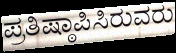
ಪ್ರತಿಷ್ಠಾಪಿಸಿರುವರು